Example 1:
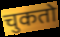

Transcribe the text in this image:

चुकतो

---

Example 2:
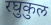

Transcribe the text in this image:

रघुकुल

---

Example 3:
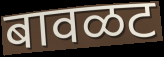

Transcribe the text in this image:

बावळट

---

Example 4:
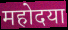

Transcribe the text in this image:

महोदया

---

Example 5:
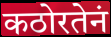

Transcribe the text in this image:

कठोरतेनं